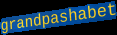
grandpashabet